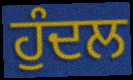
ਹੁੰਦਲ